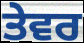
ਤੇਵਰ